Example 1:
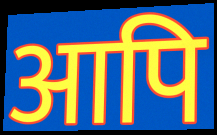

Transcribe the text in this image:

आपि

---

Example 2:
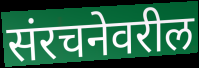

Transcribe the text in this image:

संरचनेवरील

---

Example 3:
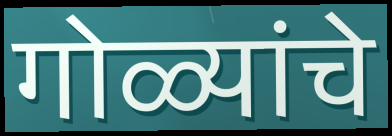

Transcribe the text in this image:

गोळ्यांचे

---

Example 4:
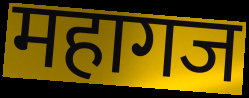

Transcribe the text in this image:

महागज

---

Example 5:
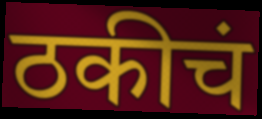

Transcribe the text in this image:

ठकीचं